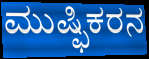
ಮುಷ್ಫಿಕರನ